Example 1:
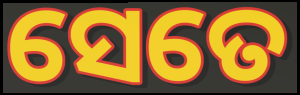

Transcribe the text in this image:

ସେତେ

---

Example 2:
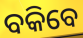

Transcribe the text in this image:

ବକିବେ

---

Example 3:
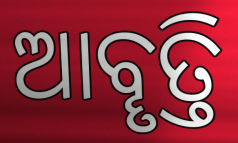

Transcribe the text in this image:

ଆବୄତ୍ତି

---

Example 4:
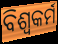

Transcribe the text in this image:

ବିଶ୍ୱକର୍ମ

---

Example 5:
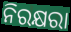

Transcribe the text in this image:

ନିରକ୍ଷରା